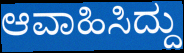
ಆವಾಹಿಸಿದ್ದು